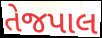
તેજપાલ